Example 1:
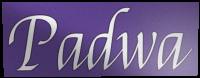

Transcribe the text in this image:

Padwa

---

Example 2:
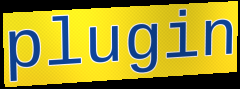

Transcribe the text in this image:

plugin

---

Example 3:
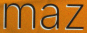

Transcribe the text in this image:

maz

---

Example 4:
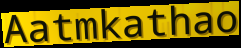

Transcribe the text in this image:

Aatmkathao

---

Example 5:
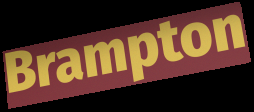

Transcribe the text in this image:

Brampton